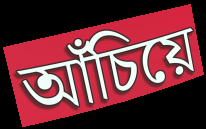
আঁচিয়ে